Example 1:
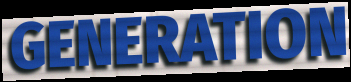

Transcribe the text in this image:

GENERATION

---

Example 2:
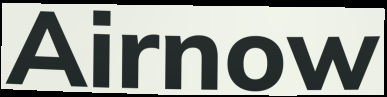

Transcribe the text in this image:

Airnow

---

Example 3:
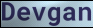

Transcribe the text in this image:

Devgan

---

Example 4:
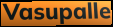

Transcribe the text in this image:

Vasupalle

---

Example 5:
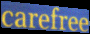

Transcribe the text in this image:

carefree